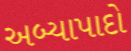
અબ્યાપાદો